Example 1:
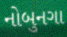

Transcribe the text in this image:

નોબુનગા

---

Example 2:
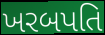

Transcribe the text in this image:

ખરબપતિ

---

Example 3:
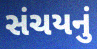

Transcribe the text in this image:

સંચયનું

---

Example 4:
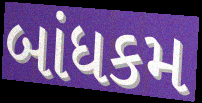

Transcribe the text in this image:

બાંધકમ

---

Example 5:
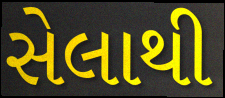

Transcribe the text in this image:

સેલાથી